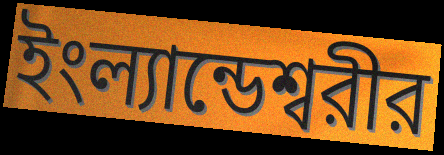
ইংল্যান্ডেশ্বরীর